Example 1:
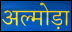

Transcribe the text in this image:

अल्मोड़ा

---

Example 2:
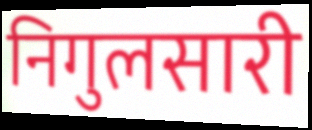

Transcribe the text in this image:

निगुलसारी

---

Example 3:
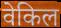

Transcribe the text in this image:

वेकिल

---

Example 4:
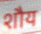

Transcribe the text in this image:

शौय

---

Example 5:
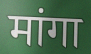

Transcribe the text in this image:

मांगा